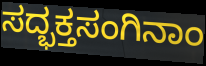
ಸದ್ಭಕ್ತಸಂಗಿನಾಂ